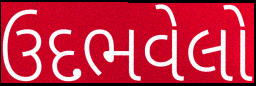
ઉદભવેલો